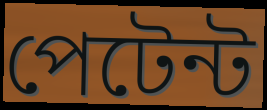
পেটেন্ট